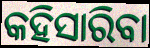
କହିସାରିବା